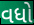
વધો